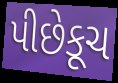
પીછેકૂચ